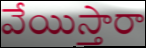
వేయిస్తారా